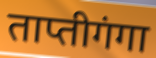
ताप्तीगंगा